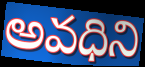
అవధిని